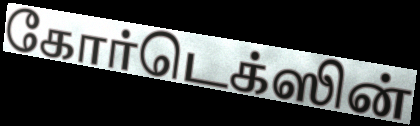
கோர்டெக்ஸின்